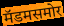
मॅडमसमोर